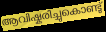
ആവിഷ്കരിച്ചുകൊണ്ടു്